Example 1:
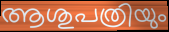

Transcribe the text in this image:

ആശുപത്രിയും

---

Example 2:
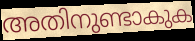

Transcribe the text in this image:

അതിനുണ്ടാകുക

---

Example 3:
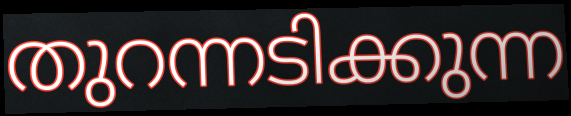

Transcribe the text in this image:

തുറന്നടിക്കുന്ന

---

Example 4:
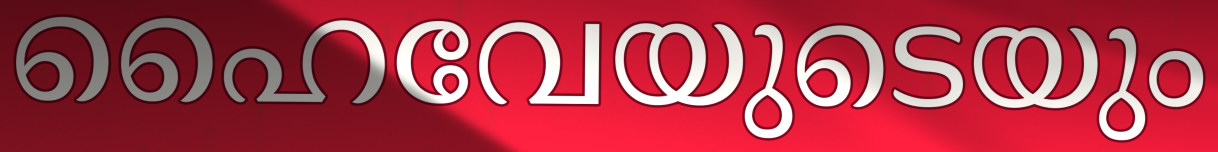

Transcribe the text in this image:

ഹൈവേയുടെയും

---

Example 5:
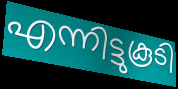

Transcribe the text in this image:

എന്നിട്ടുകൂടി